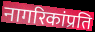
नागरिकांप्रति